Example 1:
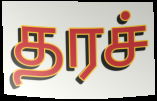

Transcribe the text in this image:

தரச்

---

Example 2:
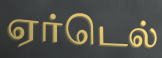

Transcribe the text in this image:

ஏர்டெல்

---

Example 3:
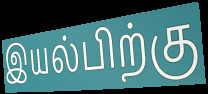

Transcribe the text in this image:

இயல்பிற்கு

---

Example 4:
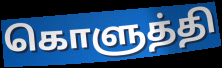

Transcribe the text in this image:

கொளுத்தி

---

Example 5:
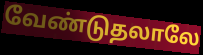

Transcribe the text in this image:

வேண்டுதலாலே